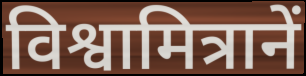
विश्वामित्रानें